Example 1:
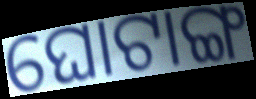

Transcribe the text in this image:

ଘୋଟାଙ୍ଗ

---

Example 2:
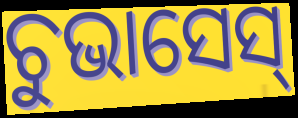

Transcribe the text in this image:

ଚୁଭାସେସ୍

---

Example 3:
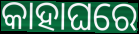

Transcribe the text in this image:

କାହାଘରେ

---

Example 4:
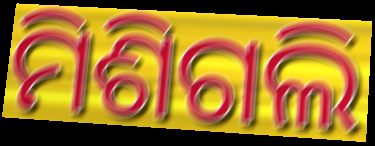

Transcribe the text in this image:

ମିଶିଗଲି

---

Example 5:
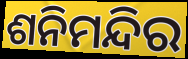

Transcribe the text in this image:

ଶନିମନ୍ଦିର